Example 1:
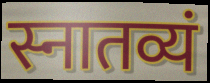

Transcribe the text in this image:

स्नातव्यं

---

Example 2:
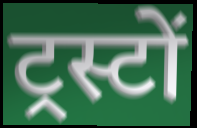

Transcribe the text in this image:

ट्रस्टों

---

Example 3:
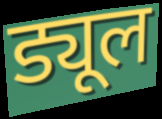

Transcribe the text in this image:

ड्यूल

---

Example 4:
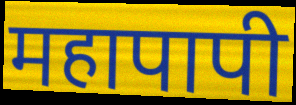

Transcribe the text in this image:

महापापी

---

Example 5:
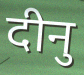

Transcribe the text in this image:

दीनु